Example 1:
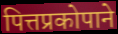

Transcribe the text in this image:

पित्तप्रकोपाने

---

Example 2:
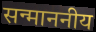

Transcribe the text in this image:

सन्माननीय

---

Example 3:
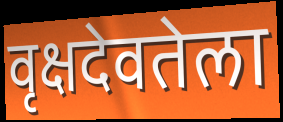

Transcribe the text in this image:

वृक्षदेवतेला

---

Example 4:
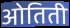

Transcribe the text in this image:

ओतिती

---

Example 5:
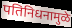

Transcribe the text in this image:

पतिनिधनामुळे